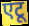
एटू